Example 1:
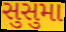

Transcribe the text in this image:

સુસુમા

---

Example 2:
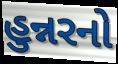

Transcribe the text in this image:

હુન્નરનો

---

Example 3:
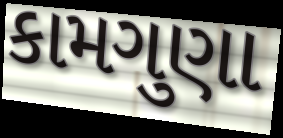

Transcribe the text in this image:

કામગુણા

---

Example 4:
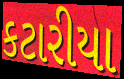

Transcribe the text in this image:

કટારીયા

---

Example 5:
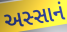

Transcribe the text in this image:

અસ્સાનં